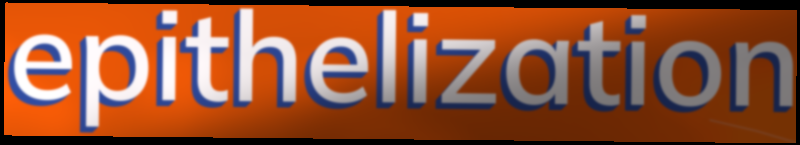
epithelization